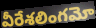
వీరేశలింగమో